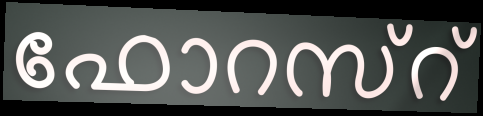
ഫോറസ്റ്